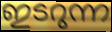
ഇടറുന്ന